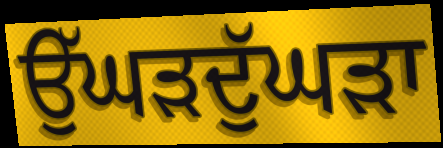
ਉੱਘੜਦੁੱਘੜਾ